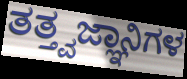
ತತ್ತ್ವಜ್ಞಾನಿಗಳ